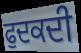
ਫੁਦਕਦੀ